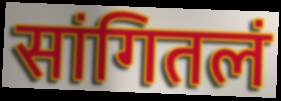
सांगितलं